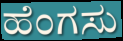
ಹೆಂಗಸು